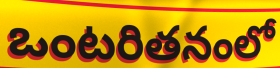
ఒంటరితనంలో